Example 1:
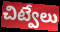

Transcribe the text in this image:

చిట్వేలు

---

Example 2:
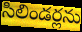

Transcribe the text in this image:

సిలిండర్లను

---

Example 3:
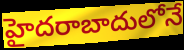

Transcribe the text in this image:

హైదరాబాదులోనే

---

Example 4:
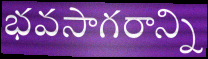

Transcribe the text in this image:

భవసాగరాన్ని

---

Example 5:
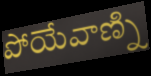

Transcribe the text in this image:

పోయేవాణ్ని